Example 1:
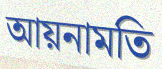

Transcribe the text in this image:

আয়নামতি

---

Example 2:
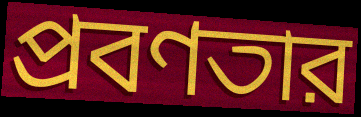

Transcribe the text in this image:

প্রবণতার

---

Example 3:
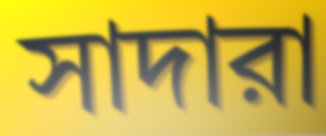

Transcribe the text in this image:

সাদারা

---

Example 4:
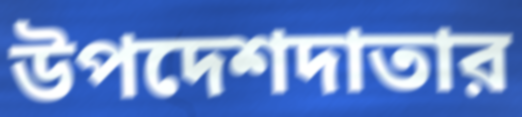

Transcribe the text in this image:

উপদেশদাতার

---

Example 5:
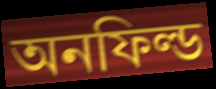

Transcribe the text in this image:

অনফিল্ড